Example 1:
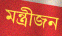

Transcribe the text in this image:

মন্ত্ৰীজন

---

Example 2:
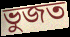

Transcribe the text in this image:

ভুজত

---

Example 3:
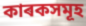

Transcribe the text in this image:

কাৰকসমূহ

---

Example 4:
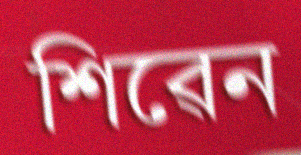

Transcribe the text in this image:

শিৱেন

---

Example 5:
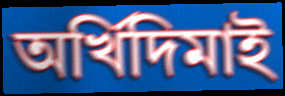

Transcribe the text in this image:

অৰ্খিদিমাই